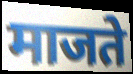
माजते